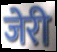
जेरी